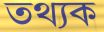
তথ্যক